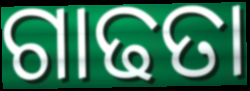
ଗାଢତା